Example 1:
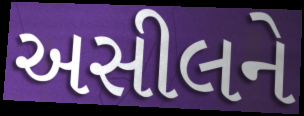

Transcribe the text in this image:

અસીલને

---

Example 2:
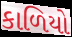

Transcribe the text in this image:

કાળિયો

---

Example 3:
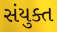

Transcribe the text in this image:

સંયુક્ત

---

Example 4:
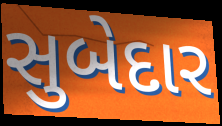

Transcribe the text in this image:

સુબેદાર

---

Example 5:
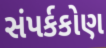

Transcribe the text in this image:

સંપર્કકોણ